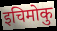
इचिमोकु